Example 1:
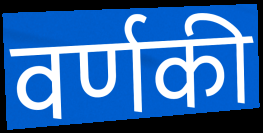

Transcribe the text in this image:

वर्णकी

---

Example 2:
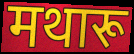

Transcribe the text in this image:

मथारू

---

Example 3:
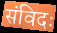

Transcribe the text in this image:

संविदः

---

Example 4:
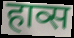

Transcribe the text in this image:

हाव्स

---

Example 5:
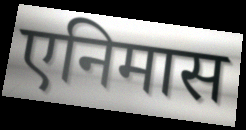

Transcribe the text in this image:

एनिमास